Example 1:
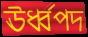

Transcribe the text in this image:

ঊর্ধ্বপদ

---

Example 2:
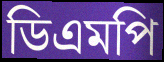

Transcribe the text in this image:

ডিএমপি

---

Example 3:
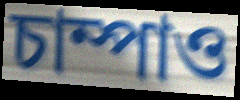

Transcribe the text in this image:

চাম্পাও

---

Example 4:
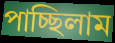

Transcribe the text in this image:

পাচ্ছিলাম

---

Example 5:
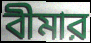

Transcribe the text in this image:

বীমার